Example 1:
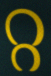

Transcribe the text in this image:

റ്റ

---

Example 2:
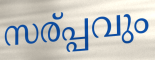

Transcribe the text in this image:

സര്പ്പവും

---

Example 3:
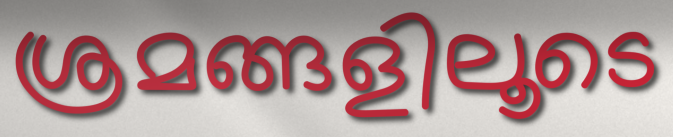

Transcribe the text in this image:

ശ്രമങ്ങളിലൂടെ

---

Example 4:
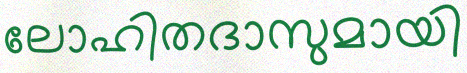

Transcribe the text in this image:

ലോഹിതദാസുമായി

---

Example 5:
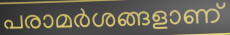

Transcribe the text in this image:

പരാമർശങ്ങളാണ്